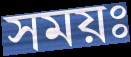
সময়ঃ